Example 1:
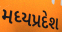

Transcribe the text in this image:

મધ્યપ્રદેશ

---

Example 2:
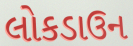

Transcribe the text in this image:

લોકડાઉન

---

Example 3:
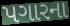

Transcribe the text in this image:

પગારના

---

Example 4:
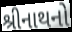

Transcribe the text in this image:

શ્રીનાથનો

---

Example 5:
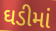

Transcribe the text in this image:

ઘડીમાં